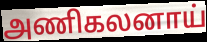
அணிகலனாய்